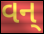
વન્